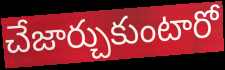
చేజార్చుకుంటారో